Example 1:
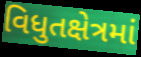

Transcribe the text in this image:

વિધુતક્ષેત્રમાં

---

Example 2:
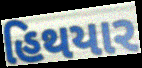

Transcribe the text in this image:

હિથયાર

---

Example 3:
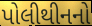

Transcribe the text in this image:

પોલીથીનનો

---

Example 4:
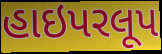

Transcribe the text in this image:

હાઇપરલૂપ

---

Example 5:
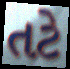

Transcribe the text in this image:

તટે